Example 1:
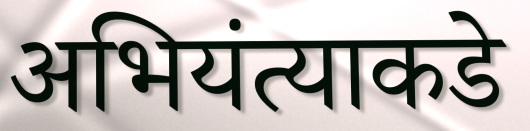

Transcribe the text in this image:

अभियंत्याकडे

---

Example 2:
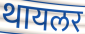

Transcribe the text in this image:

थायलर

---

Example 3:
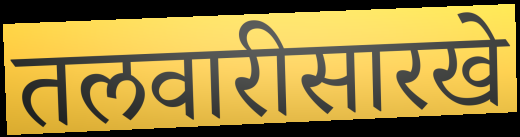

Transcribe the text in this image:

तलवारीसारखे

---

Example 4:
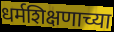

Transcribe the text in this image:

धर्मशिक्षणाच्या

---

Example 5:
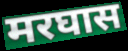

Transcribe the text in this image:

मरघास